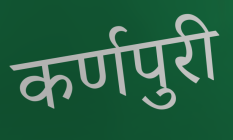
कर्णपुरी